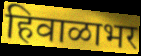
हिवाळाभर